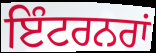
ਇੰਟਰਨਰਾਂ